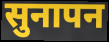
सुनापन